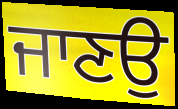
ਜਾਣਉ